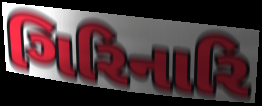
ગિરિનારિ